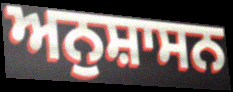
ਅਨੁਸ਼ਾਸਨ